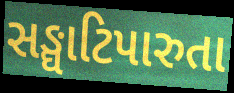
સઙ્ઘાટિપારુતા